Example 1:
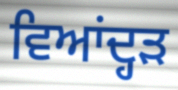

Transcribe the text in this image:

ਵਿਆਂਦ੍ਹੜ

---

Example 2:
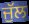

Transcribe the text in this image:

ਜੁੱਲ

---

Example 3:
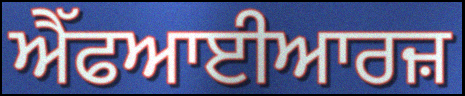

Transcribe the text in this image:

ਐੱਫਆਈਆਰਜ਼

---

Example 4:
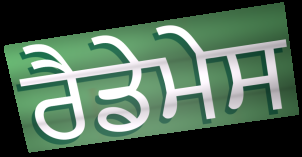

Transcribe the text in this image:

ਰੈਡੇਮੇਸ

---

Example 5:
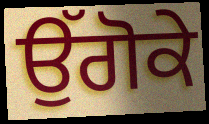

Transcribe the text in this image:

ਉੱਗੋਕੇ